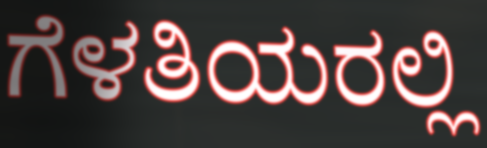
ಗೆಳತಿಯರಲ್ಲಿ